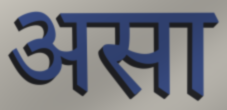
असा